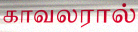
காவலரால்